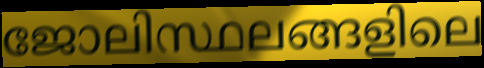
ജോലിസ്ഥലങ്ങളിലെ